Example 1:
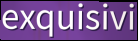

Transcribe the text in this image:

exquisivi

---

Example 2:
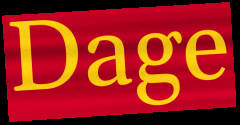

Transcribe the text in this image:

Dage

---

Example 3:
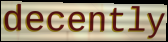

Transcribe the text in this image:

decently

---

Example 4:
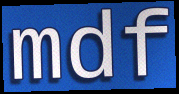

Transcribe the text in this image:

mdf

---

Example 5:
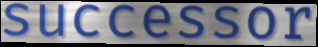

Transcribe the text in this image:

successor